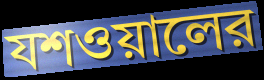
যশওয়ালের